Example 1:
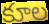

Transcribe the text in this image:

కూల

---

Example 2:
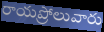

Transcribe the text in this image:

రాయప్రోలువారు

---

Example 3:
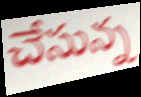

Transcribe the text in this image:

చేసున్న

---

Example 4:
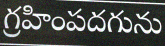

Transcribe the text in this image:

గ్రహింపదగును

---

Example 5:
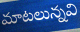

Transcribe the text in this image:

మాటలున్నవి